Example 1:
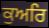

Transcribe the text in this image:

ਕੁਅਰਿ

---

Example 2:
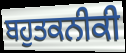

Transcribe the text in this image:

ਬਹੁਤਕਨੀਕੀ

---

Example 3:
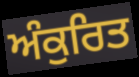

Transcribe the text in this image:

ਅੰਕੁਰਿਤ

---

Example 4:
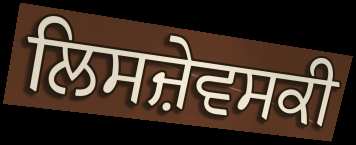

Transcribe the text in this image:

ਲਿਸਜ਼ੇਵਸਕੀ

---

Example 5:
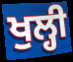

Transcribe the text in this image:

ਖੁਲ੍ਹੀ